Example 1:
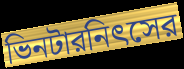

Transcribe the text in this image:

ভিনটারনিৎসের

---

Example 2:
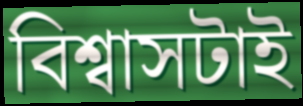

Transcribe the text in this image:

বিশ্বাসটাই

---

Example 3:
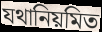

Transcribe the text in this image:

যথানিয়মিত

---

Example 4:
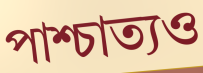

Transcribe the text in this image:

পাশ্চাত্যও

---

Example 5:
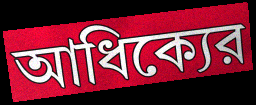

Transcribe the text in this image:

আধিক্যের